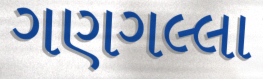
ગણગલ્લા